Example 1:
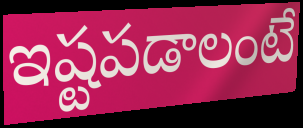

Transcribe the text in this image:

ఇష్టపడాలంటే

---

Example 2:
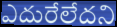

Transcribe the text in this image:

ఎదురేలేదని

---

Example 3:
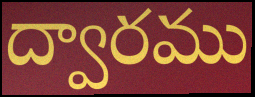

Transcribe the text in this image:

ద్వారము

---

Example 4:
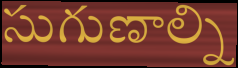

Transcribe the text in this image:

సుగుణాల్ని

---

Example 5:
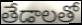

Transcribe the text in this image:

తేడాలతో